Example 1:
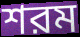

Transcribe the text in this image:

শরম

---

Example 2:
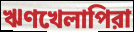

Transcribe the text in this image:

ঋণখেলাপিরা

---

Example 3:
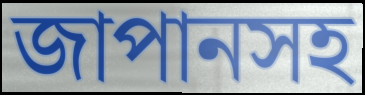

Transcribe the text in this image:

জাপানসহ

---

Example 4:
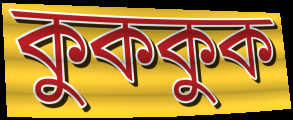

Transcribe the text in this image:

কুককুক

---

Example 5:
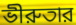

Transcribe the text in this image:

ভীরুতার